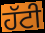
ਹੱਟੀ